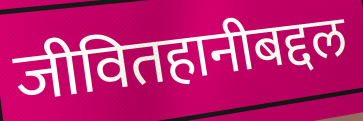
जीवितहानीबद्दल